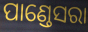
ପାଣ୍ଡେସରା